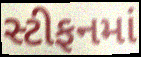
સ્ટીફનમાં